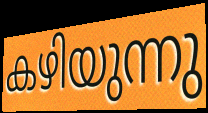
കഴിയുന്നു